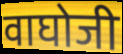
वाघोजी